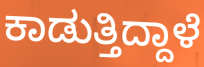
ಕಾಡುತ್ತಿದ್ದಾಳೆ